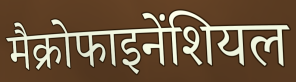
मैक्रोफाइनेंशियल